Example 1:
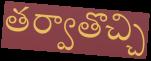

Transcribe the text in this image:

తర్వాతొచ్చి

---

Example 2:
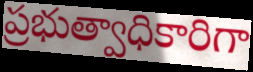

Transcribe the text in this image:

ప్రభుత్వాధికారిగా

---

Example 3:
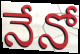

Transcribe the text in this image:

నేనో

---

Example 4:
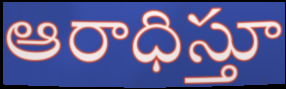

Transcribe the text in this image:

ఆరాధిస్తూ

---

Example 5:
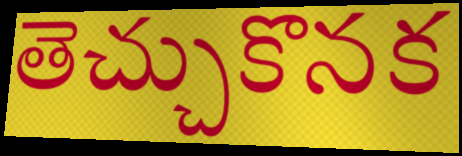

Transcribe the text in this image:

తెచ్చుకొనక